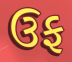
ઉફ